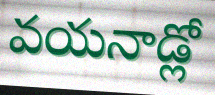
వయనాడ్లో